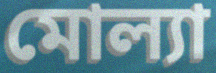
মোল্যা